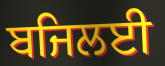
ਬਜਿਲਈ